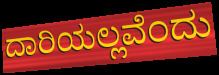
ದಾರಿಯಲ್ಲವೆಂದು